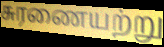
சுரணையற்று